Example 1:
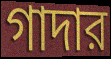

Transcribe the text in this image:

গাদার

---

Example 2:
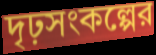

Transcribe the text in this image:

দৃঢ়সংকল্পের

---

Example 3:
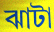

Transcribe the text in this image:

ঝাটা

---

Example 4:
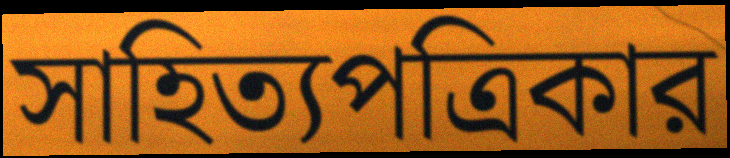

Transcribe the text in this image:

সাহিত্যপত্রিকার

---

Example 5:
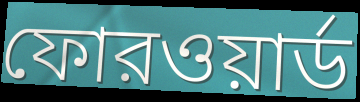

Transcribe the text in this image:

ফোরওয়ার্ড